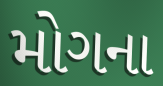
મોગના